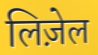
लिज़ेल